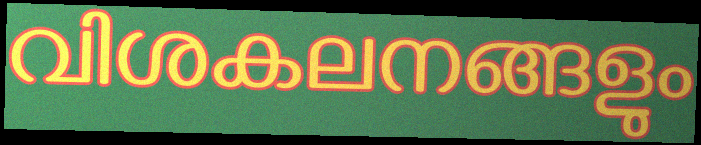
വിശകലനങ്ങളും